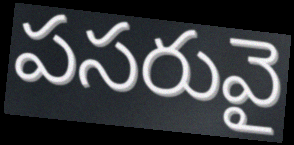
పసరువై